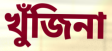
খুঁজিনা